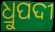
ଧ୍ରୁପଦୀ